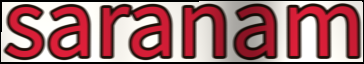
saranam